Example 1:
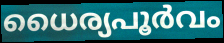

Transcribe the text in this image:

ധൈര്യപൂർവം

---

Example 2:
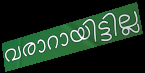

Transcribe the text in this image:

വരാറായിട്ടില്ല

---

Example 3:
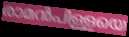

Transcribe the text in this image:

രാമൻപിള്ളയെ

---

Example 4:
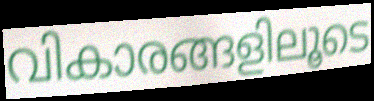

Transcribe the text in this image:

വികാരങ്ങളിലൂടെ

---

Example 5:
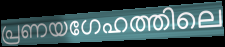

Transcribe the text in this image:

പ്രണയഗേഹത്തിലെ